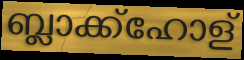
ബ്ലാക്ക്ഹോള്